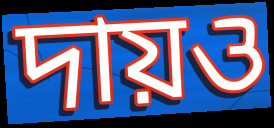
দায়ও